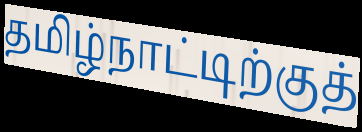
தமிழ்நாட்டிற்குத்